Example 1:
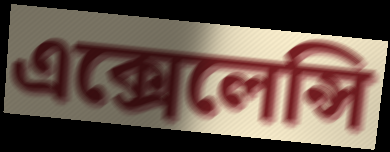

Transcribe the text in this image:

এক্সেলেন্সি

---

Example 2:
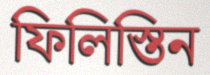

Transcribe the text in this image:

ফিলিস্তিন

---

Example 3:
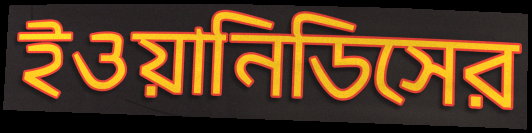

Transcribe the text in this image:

ইওয়ানিডিসের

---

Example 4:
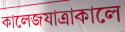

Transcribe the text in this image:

কালেজযাত্রাকালে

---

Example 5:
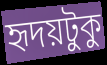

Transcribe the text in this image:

হৃদয়টুকু